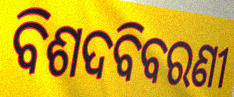
ବିଶଦବିବରଣୀ